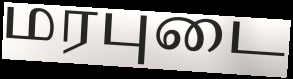
மரபுடை